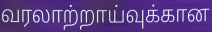
வரலாற்றாய்வுக்கான